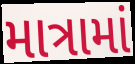
માત્રામાં